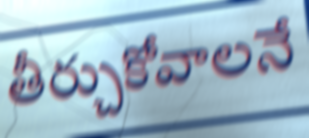
తీర్చుకోవాలనే